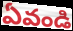
ఏవండి